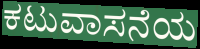
ಕಟುವಾಸನೆಯ